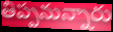
తిప్పనున్నారు